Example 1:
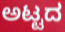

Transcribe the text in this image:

ಅಟ್ಟದ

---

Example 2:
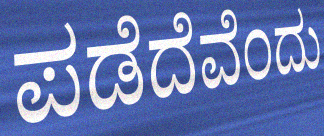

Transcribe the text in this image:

ಪಡೆದೆವೆಂದು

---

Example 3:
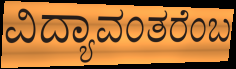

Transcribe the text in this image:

ವಿದ್ಯಾವಂತರೆಂಬ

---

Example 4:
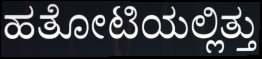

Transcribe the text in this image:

ಹತೋಟಿಯಲ್ಲಿತ್ತು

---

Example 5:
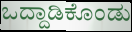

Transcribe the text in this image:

ಒದ್ದಾಡಿಕೊಂಡು